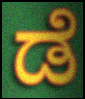
ಡೆ